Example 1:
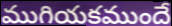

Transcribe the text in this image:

ముగియకముందే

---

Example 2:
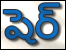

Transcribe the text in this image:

షెర్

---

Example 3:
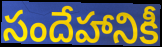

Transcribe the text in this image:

సందేహానికీ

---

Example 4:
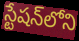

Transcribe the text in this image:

స్టేషన్‌లోని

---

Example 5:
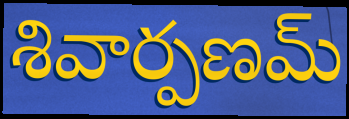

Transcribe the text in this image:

శివార్పణమ్